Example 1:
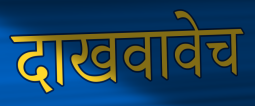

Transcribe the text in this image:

दाखवावेच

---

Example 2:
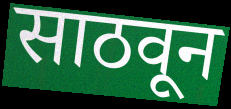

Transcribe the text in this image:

साठवून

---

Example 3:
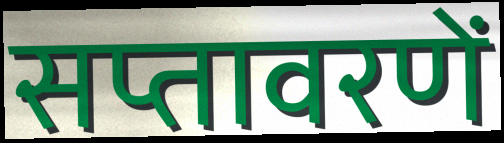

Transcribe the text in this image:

सप्तावरणें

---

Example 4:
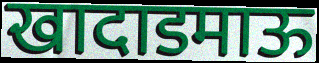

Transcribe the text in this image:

खादाडमाऊ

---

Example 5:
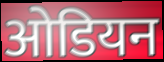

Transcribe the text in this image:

ओडियन